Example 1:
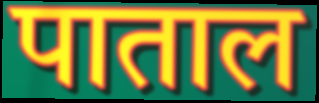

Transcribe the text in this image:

पाताल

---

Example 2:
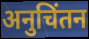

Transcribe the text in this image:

अनुचिंतन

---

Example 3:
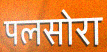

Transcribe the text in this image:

पलसोरा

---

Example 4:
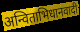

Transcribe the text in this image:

अन्विताभिधानवादी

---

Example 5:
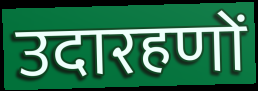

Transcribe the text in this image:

उदारहणों